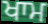
ਖਾਮ